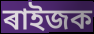
ৰাইজক